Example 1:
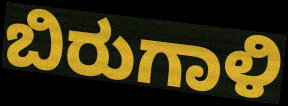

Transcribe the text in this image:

ಬಿರುಗಾಳಿ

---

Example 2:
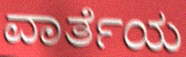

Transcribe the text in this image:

ವಾರ್ತೆಯ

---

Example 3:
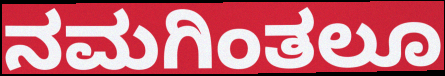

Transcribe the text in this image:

ನಮಗಿಂತಲೂ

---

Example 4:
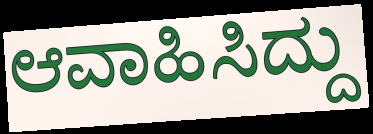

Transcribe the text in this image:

ಆವಾಹಿಸಿದ್ದು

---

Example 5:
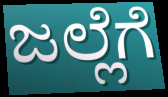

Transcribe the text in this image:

ಜಲ್ಲೆಗೆ